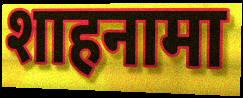
शाहनामा